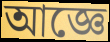
আজ্ঞে